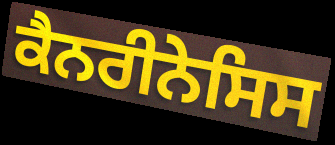
ਕੈਨਰੀਨੇਸਿਸ